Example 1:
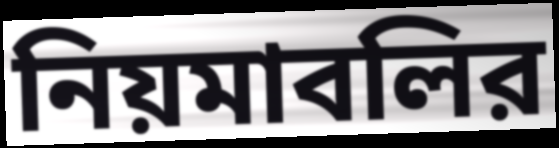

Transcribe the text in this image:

নিয়মাবলির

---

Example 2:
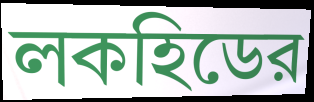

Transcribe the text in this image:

লকহিডের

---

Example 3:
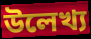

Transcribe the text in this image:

উলেখ্য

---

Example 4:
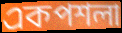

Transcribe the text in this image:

একপশলা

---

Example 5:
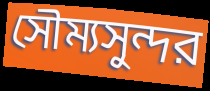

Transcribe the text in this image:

সৌম্যসুন্দর